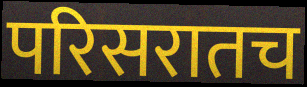
परिसरातच